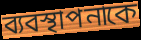
ব্যবস্থাপনাকে